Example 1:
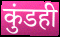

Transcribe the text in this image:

कुंडही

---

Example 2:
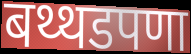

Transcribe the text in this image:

बथ्थडपणा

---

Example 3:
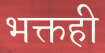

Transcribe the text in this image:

भक्तही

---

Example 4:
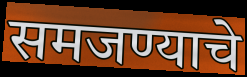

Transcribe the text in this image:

समजण्याचे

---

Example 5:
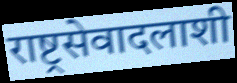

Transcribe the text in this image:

राष्ट्रसेवादलाशी